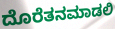
ದೊರೆತನಮಾಡಲಿ